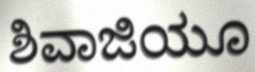
ಶಿವಾಜಿಯೂ